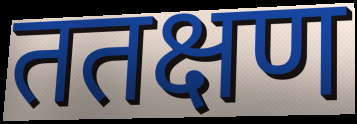
ततक्षण